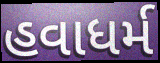
હવાધર્મ